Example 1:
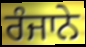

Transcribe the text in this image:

ਰੰਜਾਨੇ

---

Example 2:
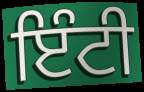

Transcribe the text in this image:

ਇੰਟੀ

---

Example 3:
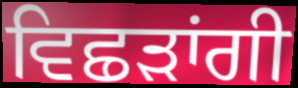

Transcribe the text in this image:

ਵਿਛੜਾਂਗੀ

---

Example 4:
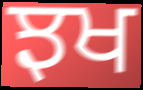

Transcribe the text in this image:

ਝਖ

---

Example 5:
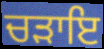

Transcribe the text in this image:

ਚੜਾਇ